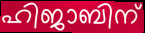
ഹിജാബിന്